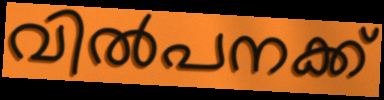
വിൽപനക്ക്